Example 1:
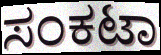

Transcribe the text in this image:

ಸಂಕಟಾ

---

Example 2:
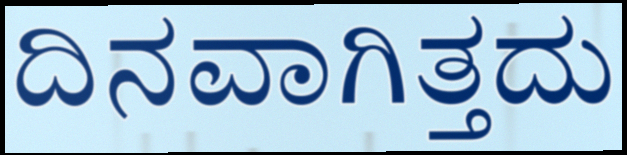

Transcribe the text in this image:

ದಿನವಾಗಿತ್ತದು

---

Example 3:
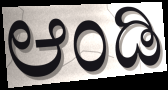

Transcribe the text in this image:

ಆಂಡಿ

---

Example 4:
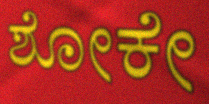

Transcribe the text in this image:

ಶೋಕೇ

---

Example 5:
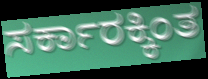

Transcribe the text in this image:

ಸರ್ಕಾರಕ್ಕಿಂತ